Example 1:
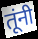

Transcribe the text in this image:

तूंनी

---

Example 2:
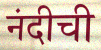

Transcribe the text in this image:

नंदीची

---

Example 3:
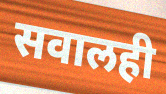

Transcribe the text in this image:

सवालही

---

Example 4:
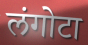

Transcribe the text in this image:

लंगोटा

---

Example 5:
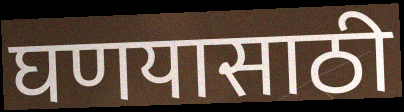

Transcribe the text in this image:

घणयासाठी